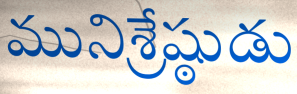
మునిశ్రేష్ఠుడు